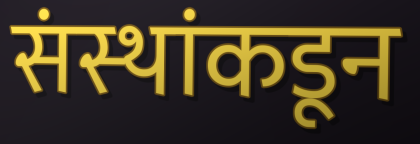
संस्थांकडून